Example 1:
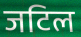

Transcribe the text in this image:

जटिल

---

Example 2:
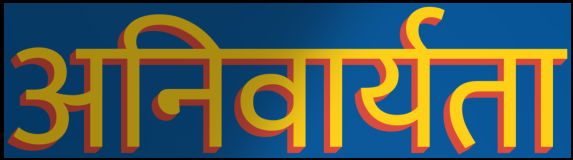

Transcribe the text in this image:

अनिवार्यता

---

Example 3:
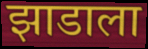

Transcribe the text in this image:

झाडाला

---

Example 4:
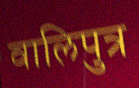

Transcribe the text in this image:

वालिपुत्र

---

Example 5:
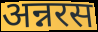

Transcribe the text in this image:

अन्नरस